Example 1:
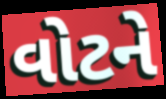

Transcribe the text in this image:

વોટને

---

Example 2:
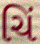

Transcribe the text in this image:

ચિં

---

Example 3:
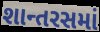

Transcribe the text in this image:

શાન્તરસમાં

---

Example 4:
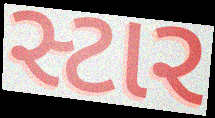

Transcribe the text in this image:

સ્ટાર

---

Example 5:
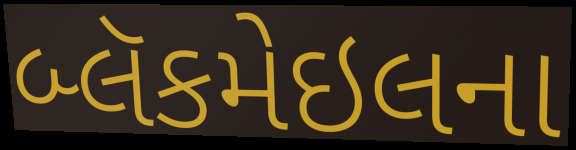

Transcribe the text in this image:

બ્લૅકમેઇલના